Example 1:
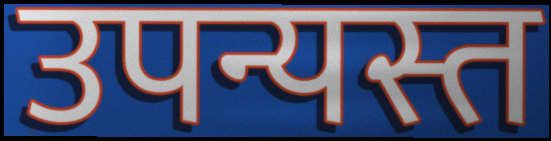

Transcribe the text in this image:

उपन्यस्त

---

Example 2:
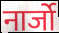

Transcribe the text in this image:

नार्जो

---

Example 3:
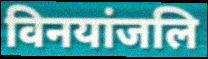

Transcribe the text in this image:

विनयांजलि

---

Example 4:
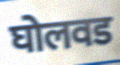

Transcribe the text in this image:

घोलवड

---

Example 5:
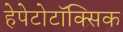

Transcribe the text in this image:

हेपेटोटॉक्सिक